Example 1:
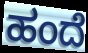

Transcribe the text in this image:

ಹಂದೆ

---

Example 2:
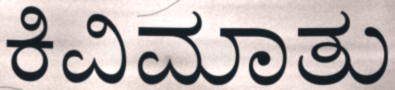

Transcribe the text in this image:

ಕಿವಿಮಾತು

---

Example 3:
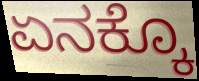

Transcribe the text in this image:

ಏನಕ್ಕೊ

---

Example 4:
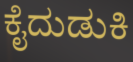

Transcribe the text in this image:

ಕೈದುಡುಕಿ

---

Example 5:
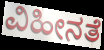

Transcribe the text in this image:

ವಿಹೀನತೆ